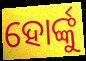
ହୋର୍ଙ୍କୁ